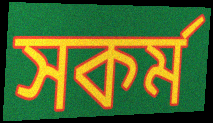
সকর্ম